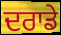
ਦਰਾਡੇ